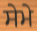
ਸੇਮੇ